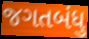
જગતબંધુ